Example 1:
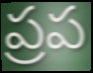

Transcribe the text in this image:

ప్రప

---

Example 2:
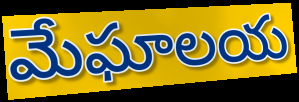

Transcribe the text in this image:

మేఘాలయ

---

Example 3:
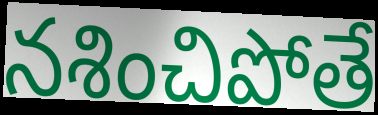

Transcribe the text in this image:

నశించిపోతే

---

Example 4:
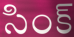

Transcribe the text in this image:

సింక్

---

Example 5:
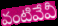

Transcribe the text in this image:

వంటివేవీ